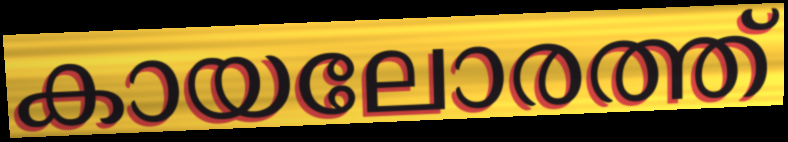
കായലോരത്ത്